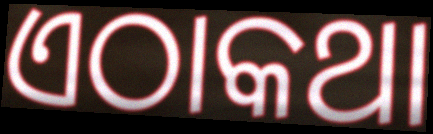
ଏଠାକଥା